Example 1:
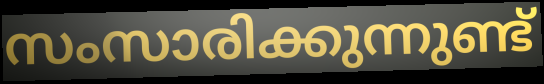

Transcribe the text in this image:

സംസാരിക്കുന്നുണ്ട്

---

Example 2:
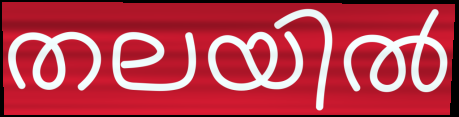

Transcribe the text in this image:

തലയിൽ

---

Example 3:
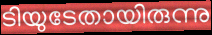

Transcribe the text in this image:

ടിയുടേതായിരുന്നു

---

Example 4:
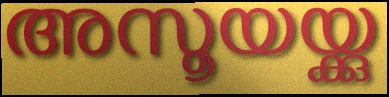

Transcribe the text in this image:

അസൂയയ്ക്കു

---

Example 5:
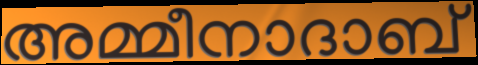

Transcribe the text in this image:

അമ്മീനാദാബ്